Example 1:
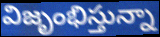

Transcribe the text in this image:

విజృంభిస్తున్నా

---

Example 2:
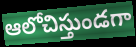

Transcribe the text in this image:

ఆలోచిస్తుండగా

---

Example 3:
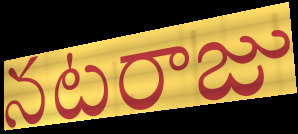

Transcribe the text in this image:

నటరాజు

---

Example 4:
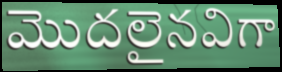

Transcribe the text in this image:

మొదలైనవిగా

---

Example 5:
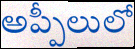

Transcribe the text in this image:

అప్పీలులో